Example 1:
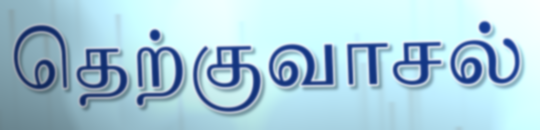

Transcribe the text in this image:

தெற்குவாசல்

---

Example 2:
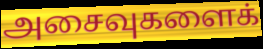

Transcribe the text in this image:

அசைவுகளைக்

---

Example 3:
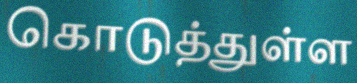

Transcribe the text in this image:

கொடுத்துள்ள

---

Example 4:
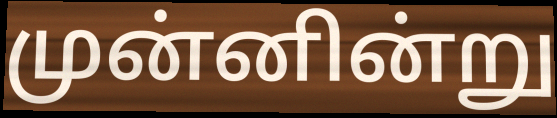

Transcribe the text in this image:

முன்னின்று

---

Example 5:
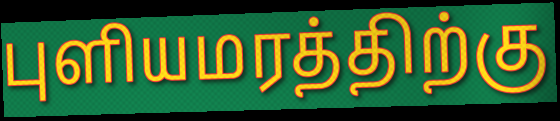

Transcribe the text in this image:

புளியமரத்திற்கு